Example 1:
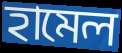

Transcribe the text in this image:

হামেল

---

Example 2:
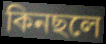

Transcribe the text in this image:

কিনছলে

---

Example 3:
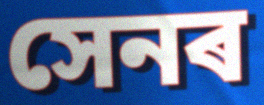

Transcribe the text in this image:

সেনৰ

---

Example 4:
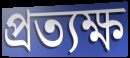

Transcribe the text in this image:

প্ৰত্যক্ষ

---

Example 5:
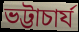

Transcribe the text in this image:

ভট্টাচাৰ্য